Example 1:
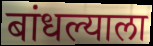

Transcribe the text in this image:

बांधल्याला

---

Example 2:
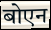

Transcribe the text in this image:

बोएन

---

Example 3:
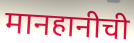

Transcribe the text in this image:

मानहानीची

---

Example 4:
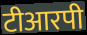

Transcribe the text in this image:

टीआरपी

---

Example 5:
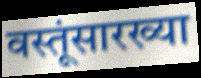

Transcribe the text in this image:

वस्तूंसारख्या